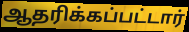
ஆதரிக்கப்பட்டார்